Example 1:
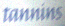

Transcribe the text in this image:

tannins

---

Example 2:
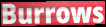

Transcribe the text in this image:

Burrows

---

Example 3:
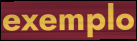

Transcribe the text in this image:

exemplo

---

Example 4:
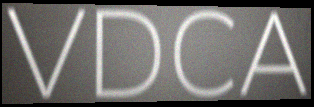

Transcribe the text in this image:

VDCA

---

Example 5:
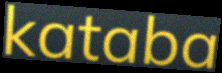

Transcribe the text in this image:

kataba